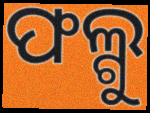
ଫଲ୍ଗୁ